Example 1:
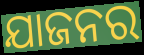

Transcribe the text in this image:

ଯାଜନର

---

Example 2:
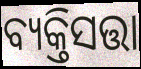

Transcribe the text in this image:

ବ୍ୟକ୍ତିସତ୍ତା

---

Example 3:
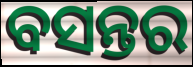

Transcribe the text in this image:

ବସନ୍ତର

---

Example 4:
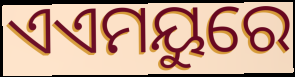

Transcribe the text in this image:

ଏଏମୟୁରେ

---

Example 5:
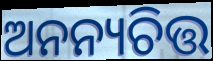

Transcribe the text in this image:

ଅନନ୍ୟଚିତ୍ତ